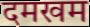
दमखम